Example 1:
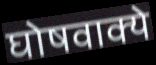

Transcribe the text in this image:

घोषवाक्ये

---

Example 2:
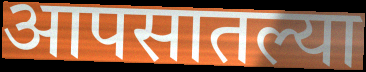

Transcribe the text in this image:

आपसातल्या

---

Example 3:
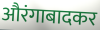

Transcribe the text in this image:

औरंगाबादकर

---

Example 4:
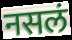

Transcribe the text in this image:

नसलं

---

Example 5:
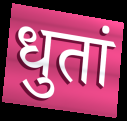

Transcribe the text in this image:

धुतां